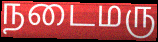
நடைமரு